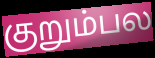
குறும்பல